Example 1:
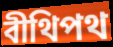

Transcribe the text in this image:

বীথিপথ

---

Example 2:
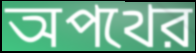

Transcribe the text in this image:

অপথের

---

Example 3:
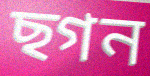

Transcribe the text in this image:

ছগন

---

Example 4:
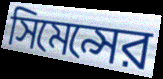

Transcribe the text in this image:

সিমেন্সের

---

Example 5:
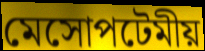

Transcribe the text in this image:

মেসোপটেমীয়